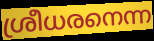
ശ്രീധരനെന്ന